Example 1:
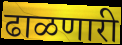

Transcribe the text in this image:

ढाळणारी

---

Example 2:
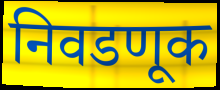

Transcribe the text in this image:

निवडणूक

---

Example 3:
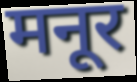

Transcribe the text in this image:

मनूर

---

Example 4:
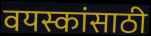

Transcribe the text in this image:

वयस्कांसाठी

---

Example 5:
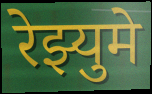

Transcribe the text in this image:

रेझ्युमे